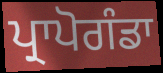
ਪ੍ਰਾਪੋਗੰਡਾ